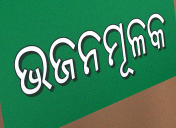
ଭଜନମୂଳକ